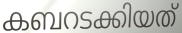
കബറടക്കിയത്